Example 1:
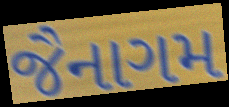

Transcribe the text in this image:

જૈનાગમ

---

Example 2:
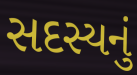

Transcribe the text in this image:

સદસ્યનું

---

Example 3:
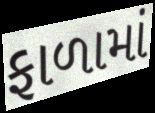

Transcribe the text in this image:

ફાળામાં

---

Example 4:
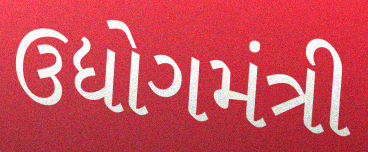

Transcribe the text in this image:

ઉદ્યોગમંત્રી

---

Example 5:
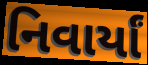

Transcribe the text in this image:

નિવાર્યાં